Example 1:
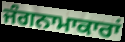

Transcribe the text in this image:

ਜੰਗਨਾਮਾਕਾਰਾਂ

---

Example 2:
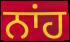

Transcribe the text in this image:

ਨਾਂਹ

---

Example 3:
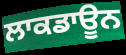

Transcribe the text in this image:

ਲਾਕਡਾਊਨ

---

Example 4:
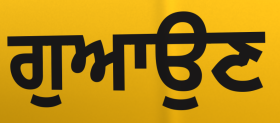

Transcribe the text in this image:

ਗੁਆਉਣ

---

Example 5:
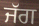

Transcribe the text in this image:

ਜੱਗ